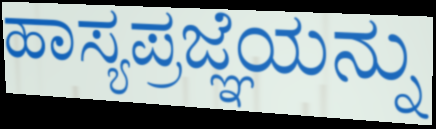
ಹಾಸ್ಯಪ್ರಜ್ಞೆಯನ್ನು